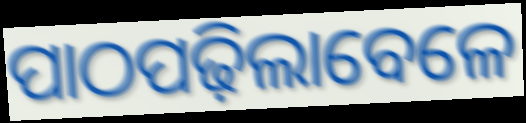
ପାଠପଢ଼ିଲାବେଳେ